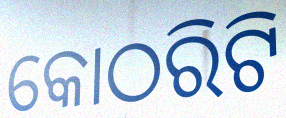
କୋଠରିଟି